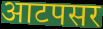
आटपसर